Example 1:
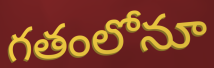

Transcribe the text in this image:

గతంలోనూ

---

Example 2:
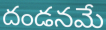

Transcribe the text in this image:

దండనమే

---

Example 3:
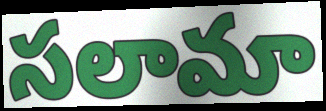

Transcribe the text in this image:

సలామా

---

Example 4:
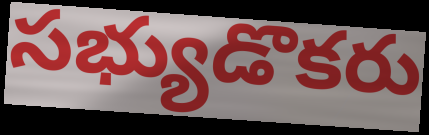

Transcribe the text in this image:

సభ్యుడొకరు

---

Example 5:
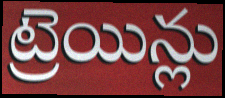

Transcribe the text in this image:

ట్రెయిన్లు